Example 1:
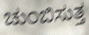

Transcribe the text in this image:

ಚುಂಬಿಸುತ್ತ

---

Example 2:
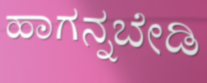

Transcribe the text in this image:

ಹಾಗನ್ನಬೇಡಿ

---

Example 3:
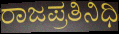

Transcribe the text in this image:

ರಾಜಪ್ರತಿನಿಧಿ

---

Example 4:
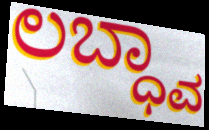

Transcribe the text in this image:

ಲಬ್ಧ್ವಾ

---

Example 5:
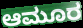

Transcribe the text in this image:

ಆಮೂರ